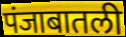
पंजाबातली